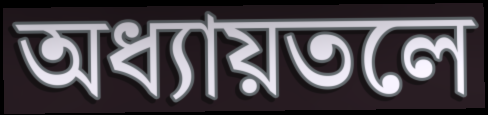
অধ্যায়তলে